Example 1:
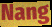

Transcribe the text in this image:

Nang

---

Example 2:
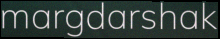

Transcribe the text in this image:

margdarshak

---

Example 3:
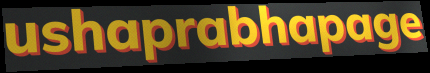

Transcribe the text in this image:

ushaprabhapage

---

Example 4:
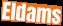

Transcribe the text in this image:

Eldams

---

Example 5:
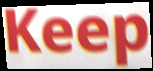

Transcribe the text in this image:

Keep